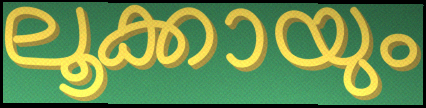
ലൂക്കായും